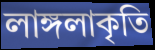
লাঙ্গলাকৃতি